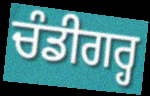
ਚੰਡੀਗਰ੍ਹ